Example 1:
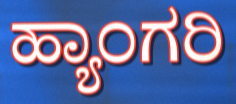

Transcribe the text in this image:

ಹ್ಯಾಂಗರಿ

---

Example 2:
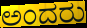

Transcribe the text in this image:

ಅಂದರು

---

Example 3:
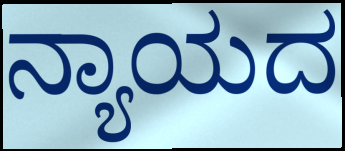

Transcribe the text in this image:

ನ್ಯಾಯದ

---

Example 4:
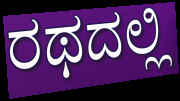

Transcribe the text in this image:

ರಥದಲ್ಲಿ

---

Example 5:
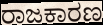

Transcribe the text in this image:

ರಾಜಕಾರಣ